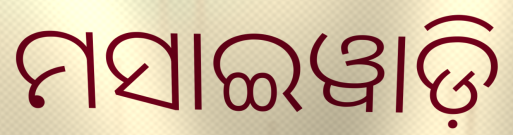
ମସାଇୱାଡ଼ି